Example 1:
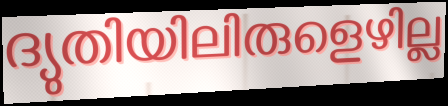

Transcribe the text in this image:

ദ്യുതിയിലിരുളെഴില്ല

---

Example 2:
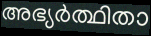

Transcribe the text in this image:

അഭ്യർത്ഥിതാ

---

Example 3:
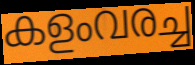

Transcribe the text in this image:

കളംവരച്ച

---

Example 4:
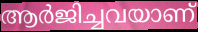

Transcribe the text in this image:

ആർജിച്ചവയാണ്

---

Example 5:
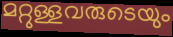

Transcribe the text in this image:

മറ്റുള്ളവരുടെയും